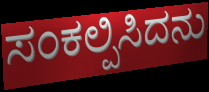
ಸಂಕಲ್ಪಿಸಿದನು